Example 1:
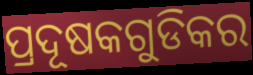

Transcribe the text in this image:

ପ୍ରଦୂଷକଗୁଡିକର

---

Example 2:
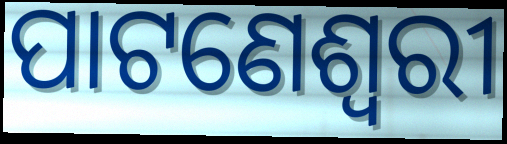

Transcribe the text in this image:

ପାଟଣେଶ୍ୱରୀ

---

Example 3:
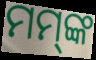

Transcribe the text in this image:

ମମ୍‌ଙ୍କ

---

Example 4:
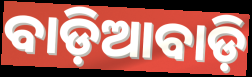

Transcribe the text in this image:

ବାଡ଼ିଆବାଡ଼ି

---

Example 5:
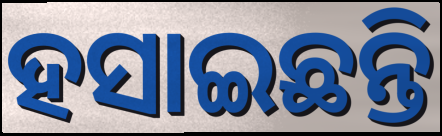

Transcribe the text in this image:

ହସାଇଛନ୍ତି